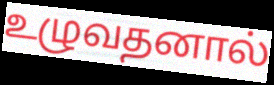
உழுவதனால்